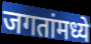
जगतांमध्ये